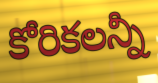
కోరికలన్నీ